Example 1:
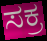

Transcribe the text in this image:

ಸಕ್ರ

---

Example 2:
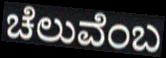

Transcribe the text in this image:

ಚೆಲುವೆಂಬ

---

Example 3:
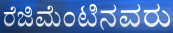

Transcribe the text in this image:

ರೆಜಿಮೆಂಟಿನವರು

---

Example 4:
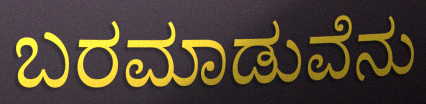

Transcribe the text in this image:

ಬರಮಾಡುವೆನು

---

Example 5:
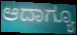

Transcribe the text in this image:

ಆದಾಗ್ಯೂ